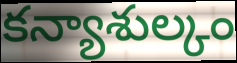
కన్యాశుల్కం